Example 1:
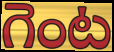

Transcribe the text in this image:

గెంట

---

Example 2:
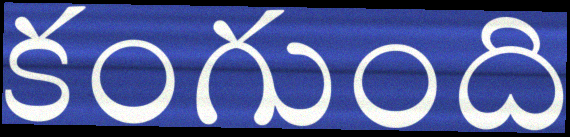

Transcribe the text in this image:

కంగుంది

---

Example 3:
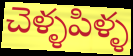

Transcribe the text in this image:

చెళ్ళపిళ్ళ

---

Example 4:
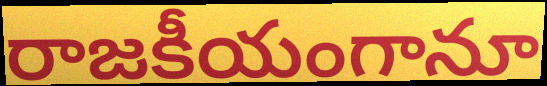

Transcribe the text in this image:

రాజకీయంగానూ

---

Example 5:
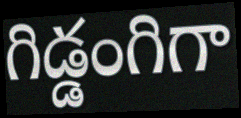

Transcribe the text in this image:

గిడ్డంగిగా